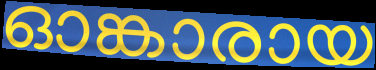
ഓങ്കാരായ